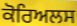
ਕੋਰਿਅਲਸ